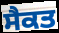
ਸੈਕਤ